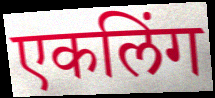
एकलिंग